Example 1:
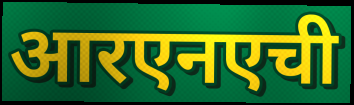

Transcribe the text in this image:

आरएनएची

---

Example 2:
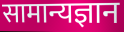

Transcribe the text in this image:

सामान्यज्ञान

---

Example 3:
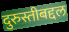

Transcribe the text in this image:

दुरुस्तीबद्दल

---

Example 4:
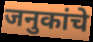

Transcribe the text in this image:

जनुकांचे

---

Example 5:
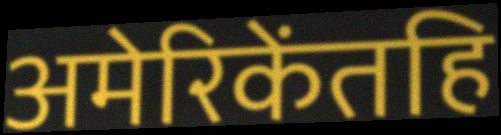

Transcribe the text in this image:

अमेरिकेंतहि